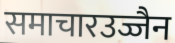
समाचारउज्जैन